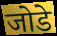
जोडे